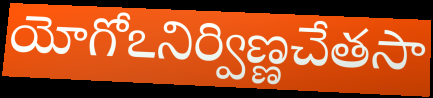
యోగోఽనిర్విణ్ణచేతసా